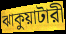
ঝাকুয়াটারী